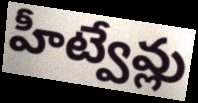
హీట్వేవ్లు